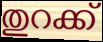
തുറക്ക്